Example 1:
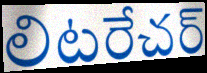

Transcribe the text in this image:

లిటరేచర్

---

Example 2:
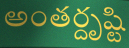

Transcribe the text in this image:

అంతర్దృష్టి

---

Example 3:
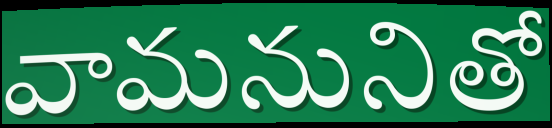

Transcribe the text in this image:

వామనునితో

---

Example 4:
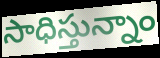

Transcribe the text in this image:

సాధిస్తున్నాం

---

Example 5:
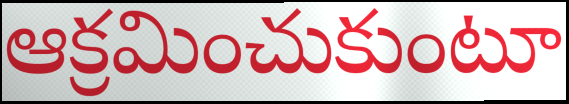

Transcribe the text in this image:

ఆక్రమించుకుంటూ